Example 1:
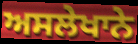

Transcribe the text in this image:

ਅਸਲੇਖਾਨੇ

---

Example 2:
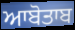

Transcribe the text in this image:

ਆਬੋਤਾਬ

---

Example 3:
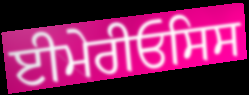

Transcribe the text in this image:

ਈਮੇਰੀਓਸਿਸ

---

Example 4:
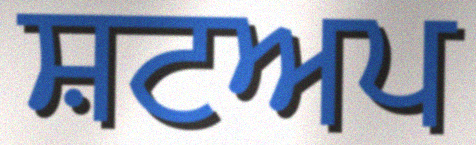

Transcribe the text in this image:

ਸ਼ਟਅਪ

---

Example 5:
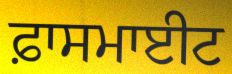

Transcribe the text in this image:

ਫ਼ਾਸਮਾਈਟ